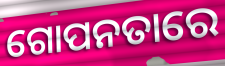
ଗୋପନତାରେ